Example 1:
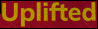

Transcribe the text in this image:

Uplifted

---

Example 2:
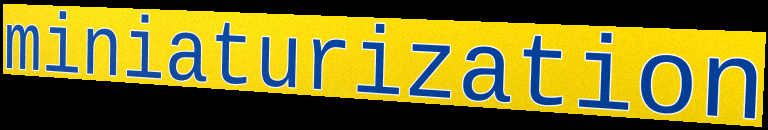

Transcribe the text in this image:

miniaturization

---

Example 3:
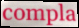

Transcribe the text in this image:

compla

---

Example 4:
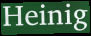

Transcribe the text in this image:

Heinig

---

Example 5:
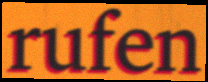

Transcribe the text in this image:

rufen